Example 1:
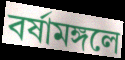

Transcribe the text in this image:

বর্ষামঙ্গলে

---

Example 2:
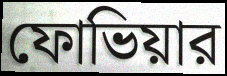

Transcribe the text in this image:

ফোভিয়ার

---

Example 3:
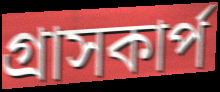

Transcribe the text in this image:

গ্রাসকার্প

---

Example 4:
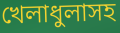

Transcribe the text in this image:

খেলাধুলাসহ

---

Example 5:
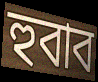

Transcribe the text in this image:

হুবাব